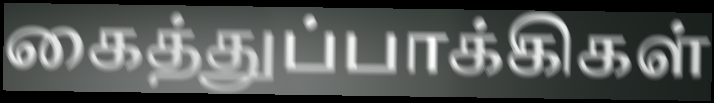
கைத்துப்பாக்கிகள்